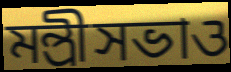
মন্ত্রীসভাও